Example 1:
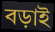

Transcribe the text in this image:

বড়াই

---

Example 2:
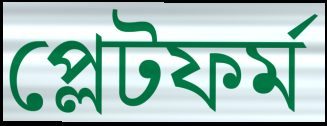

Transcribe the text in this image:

প্লেটফৰ্ম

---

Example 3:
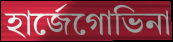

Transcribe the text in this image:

হাৰ্জেগোভিনা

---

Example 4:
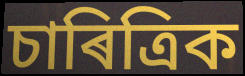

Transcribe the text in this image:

চাৰিত্ৰিক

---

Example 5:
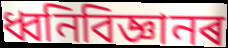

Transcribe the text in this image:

ধ্বনিবিজ্ঞানৰ